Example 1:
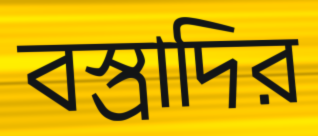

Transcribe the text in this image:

বস্ত্রাদির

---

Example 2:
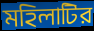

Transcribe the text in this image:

মহিলাটির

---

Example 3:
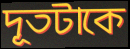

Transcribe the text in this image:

দূতটাকে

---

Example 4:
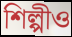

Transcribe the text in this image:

শিল্পীও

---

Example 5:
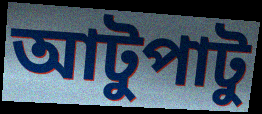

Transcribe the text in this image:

আটুপাটু